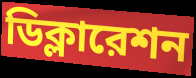
ডিক্লারেশন